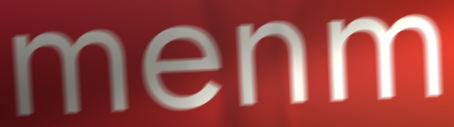
menm